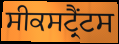
ਸੀਕਸਟ੍ਰੈਂਟਸ